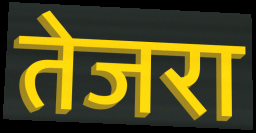
तेजरा